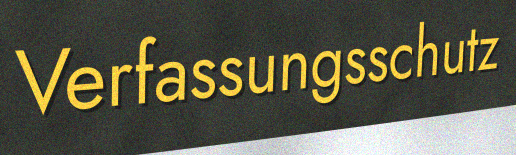
Verfassungsschutz